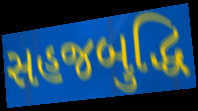
સહજબુદ્ધિ